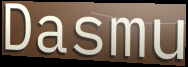
Dasmu